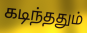
கடிந்ததும்